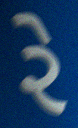
રે